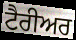
ਟੈਰੀਅਰ